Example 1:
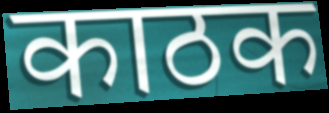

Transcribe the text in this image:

काठक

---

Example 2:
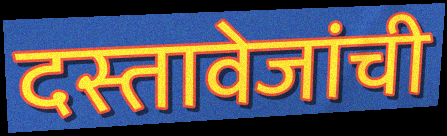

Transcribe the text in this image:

दस्तावेजांची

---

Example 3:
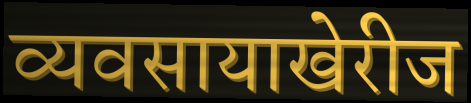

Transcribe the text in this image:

व्यवसायाखेरीज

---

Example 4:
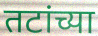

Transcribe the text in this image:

तटांच्या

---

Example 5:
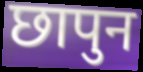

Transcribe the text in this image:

छापुन